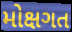
મોક્ષગત